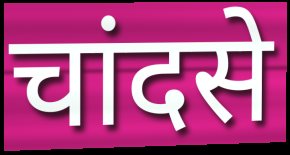
चांदसे